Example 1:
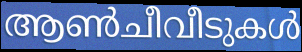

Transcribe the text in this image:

ആൺചീവീടുകൾ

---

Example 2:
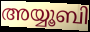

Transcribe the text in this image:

അയ്യൂബി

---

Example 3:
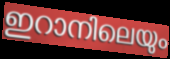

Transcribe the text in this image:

ഇറാനിലെയും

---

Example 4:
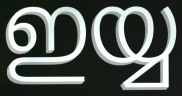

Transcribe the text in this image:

ഇയ്യ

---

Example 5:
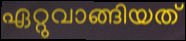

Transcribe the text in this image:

ഏറ്റുവാങ്ങിയത്